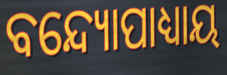
ବନ୍ଦ୍ୟୋପାଧ୍ୟାୟ